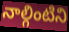
నాల్గింటిని